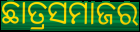
ଛାତ୍ରସମାଜର